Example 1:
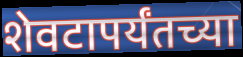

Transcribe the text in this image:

शेवटापर्यंतच्या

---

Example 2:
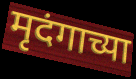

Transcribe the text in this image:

मृदंगाच्या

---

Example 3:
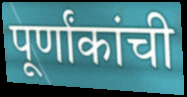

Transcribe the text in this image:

पूर्णांकांची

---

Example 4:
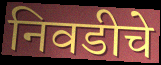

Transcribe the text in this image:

निवडीचे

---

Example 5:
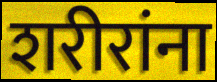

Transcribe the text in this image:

शरीरांना